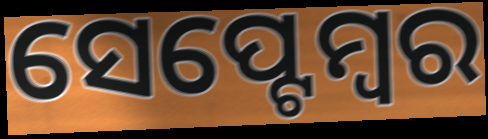
ସେପ୍ଟେମ୍ୱର